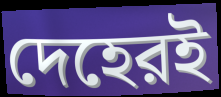
দেহেরই